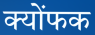
क्योंफक